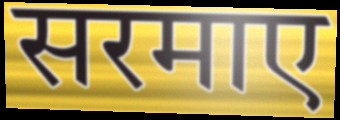
सरमाए